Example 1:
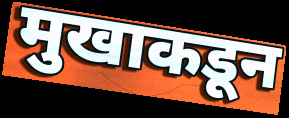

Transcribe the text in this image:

मुखाकडून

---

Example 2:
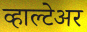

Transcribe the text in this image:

व्हाल्टेअर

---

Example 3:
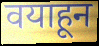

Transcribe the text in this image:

वयाहून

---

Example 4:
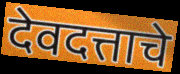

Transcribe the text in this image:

देवदत्ताचे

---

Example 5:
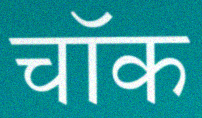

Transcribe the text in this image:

चॉक